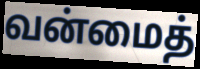
வன்மைத்